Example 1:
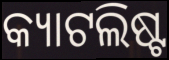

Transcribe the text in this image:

କ୍ୟାଟଲିଷ୍ଟ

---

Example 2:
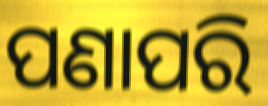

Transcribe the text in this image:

ପଣାପରି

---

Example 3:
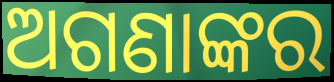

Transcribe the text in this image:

ଅଗଣାଙ୍କର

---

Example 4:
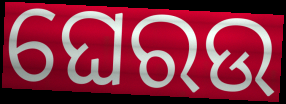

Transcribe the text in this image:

ଘେରଉ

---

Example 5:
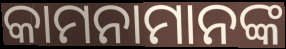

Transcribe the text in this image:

କାମନାମାନଙ୍କ